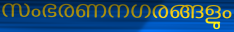
സംഭരണനഗരങ്ങളും